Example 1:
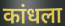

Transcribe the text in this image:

कांधला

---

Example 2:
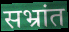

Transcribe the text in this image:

सभ्रांत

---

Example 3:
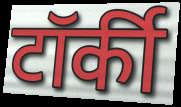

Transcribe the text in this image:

टॉर्की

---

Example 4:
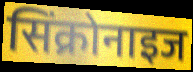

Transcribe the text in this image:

सिंक्रोनाइज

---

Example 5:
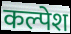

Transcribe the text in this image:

कल्पेश